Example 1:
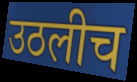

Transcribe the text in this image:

उठलीच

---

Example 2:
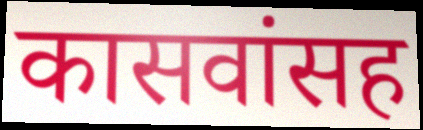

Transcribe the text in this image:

कासवांसह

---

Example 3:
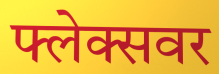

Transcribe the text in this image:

फ्लेक्सवर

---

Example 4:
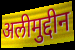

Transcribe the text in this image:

अलीमुद्दीन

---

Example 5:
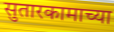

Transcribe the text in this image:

सुतारकामाच्या